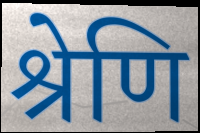
श्रेणि